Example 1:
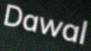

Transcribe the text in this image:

Dawal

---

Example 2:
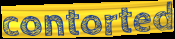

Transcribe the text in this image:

contorted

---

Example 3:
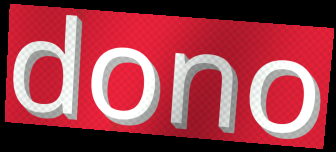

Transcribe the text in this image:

dono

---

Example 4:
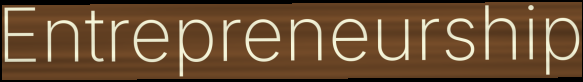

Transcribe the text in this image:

Entrepreneurship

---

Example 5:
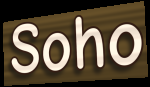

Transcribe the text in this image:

Soho